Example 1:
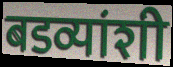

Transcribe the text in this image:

बडव्यांशी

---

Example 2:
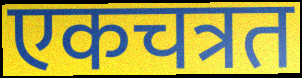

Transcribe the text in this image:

एकचत्रत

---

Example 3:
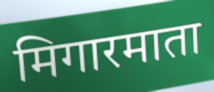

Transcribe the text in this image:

मिगारमाता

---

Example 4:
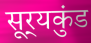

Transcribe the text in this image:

सूर्यकुंड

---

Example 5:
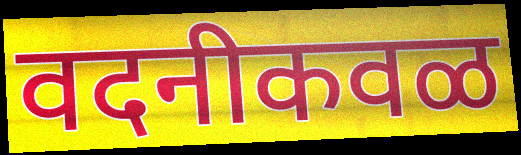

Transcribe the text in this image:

वदनीकवळ